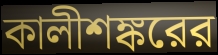
কালীশঙ্করের